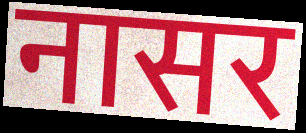
नासर